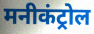
मनीकंट्रोल